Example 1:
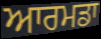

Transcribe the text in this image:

ਆਰਮਡਾ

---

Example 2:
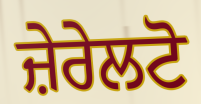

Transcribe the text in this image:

ਜ਼ੇਰੇਲਟੋ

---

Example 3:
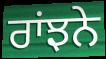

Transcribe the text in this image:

ਰਾਂਝਨੇ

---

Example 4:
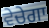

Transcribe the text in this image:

ਵੇਚੇਗਾ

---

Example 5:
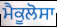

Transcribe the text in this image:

ਮੈਕੂਲੋਸਾ